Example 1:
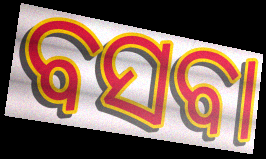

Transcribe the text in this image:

ବସବା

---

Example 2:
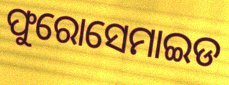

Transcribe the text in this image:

ଫୁରୋସେମାଇଡ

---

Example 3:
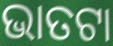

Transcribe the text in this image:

ଭାତଟା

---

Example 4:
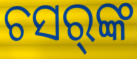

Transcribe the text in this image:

ଚସର୍‌ଙ୍କ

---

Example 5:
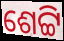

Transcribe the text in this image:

ଶେଟ୍ଟି